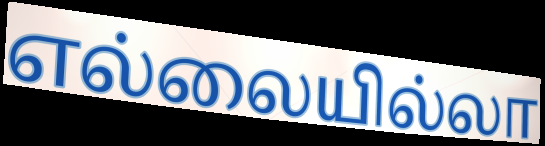
எல்லையில்லா